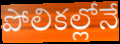
పోలికల్లోనే